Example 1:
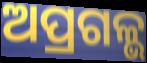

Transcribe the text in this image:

ଅପ୍ରଗଳ୍ଭ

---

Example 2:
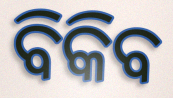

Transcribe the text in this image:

ବିକିବ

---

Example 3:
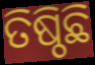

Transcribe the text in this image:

ତିଷ୍ଠିଛି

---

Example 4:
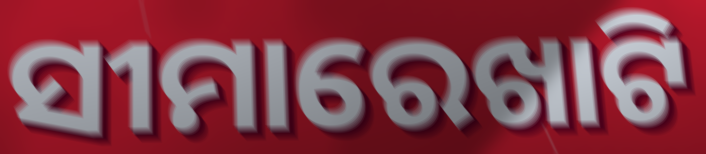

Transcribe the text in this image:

ସୀମାରେଖାଟି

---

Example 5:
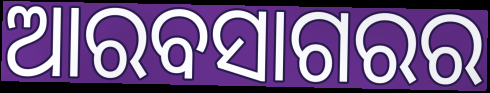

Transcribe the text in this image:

ଆରବସାଗରର